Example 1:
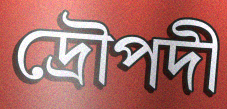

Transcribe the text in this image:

দ্রৌপদী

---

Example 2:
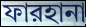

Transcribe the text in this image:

ফারহানা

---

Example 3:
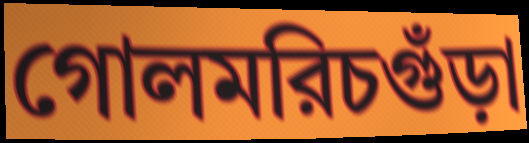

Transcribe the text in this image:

গোলমরিচগুঁড়া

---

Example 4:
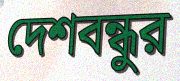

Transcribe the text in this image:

দেশবন্ধুর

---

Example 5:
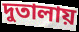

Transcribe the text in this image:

দুতালায়